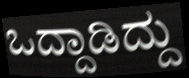
ಒದ್ದಾಡಿದ್ದು